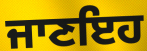
ਜਾਣਇਹ